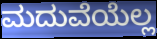
ಮದುವೆಯೆಲ್ಲ